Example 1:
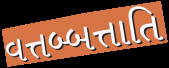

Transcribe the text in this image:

વત્તબ્બત્તાતિ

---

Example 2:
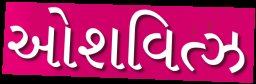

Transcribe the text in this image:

ઓશવિત્ઝ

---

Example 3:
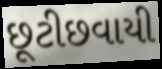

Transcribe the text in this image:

છૂટીછવાયી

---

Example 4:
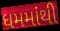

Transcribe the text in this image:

ધમમાંથી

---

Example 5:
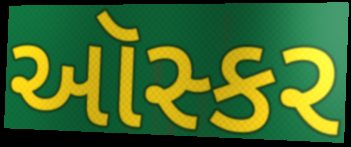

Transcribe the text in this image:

ઑસ્કર